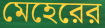
মেহেরের